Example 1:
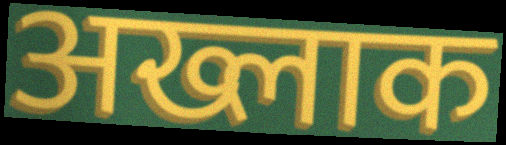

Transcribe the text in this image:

अख्लाक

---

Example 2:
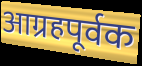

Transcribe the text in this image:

आग्रहपूर्वक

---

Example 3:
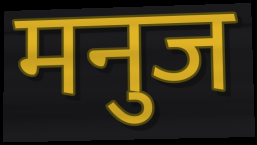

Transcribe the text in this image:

मनुज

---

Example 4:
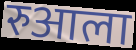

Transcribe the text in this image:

रुआला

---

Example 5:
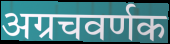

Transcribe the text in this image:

अग्रचवर्णक